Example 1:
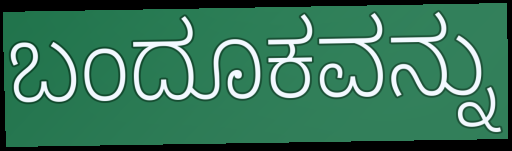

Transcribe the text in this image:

ಬಂದೂಕವನ್ನು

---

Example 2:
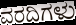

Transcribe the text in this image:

ವರದಿಗಳು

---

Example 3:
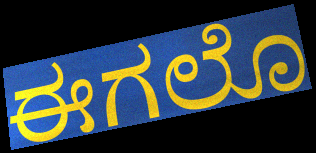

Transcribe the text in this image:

ಈಗಲೊ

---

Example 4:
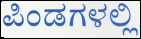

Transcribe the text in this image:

ಪಿಂಡಗಳಲ್ಲಿ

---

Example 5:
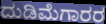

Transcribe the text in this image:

ದುಡಿಮೆಗಾರರ